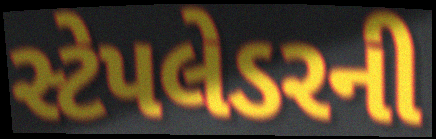
સ્ટેપલેડરની